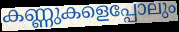
കണ്ണുകളെപ്പോലും